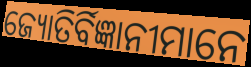
ଜ୍ୟୋତିର୍ବିଜ୍ଞାନୀମାନେ